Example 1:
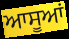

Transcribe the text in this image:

ਆਸੂਆਂ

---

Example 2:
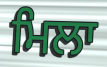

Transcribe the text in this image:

ਮਿਲਾ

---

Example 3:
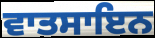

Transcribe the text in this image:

ਵਾਤਸਾਇਨ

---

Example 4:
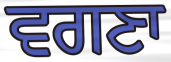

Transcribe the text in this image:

ਵਗਣਾ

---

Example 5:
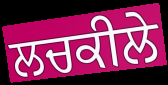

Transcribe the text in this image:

ਲਚਕੀਲੇ